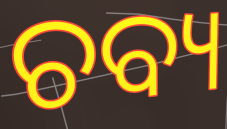
ଚବ୍ୟ